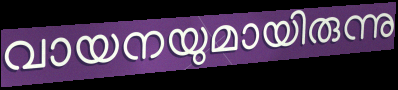
വായനയുമായിരുന്നു